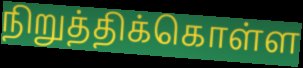
நிறுத்திக்கொள்ள